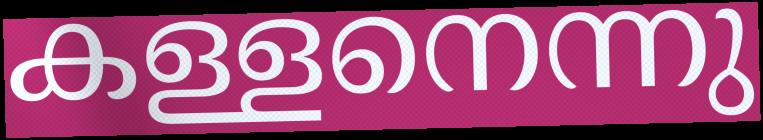
കള്ളനെന്നു